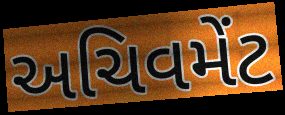
અચિવમેંટ